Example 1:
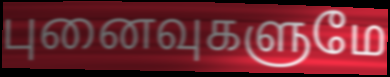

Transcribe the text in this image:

புனைவுகளுமே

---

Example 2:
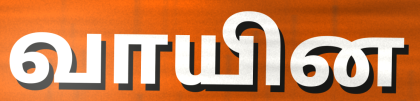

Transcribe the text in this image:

வாயின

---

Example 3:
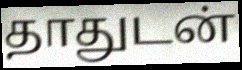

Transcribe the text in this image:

தாதுடன்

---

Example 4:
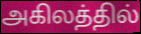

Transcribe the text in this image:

அகிலத்தில்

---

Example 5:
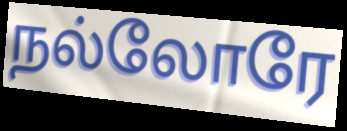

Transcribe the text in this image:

நல்லோரே